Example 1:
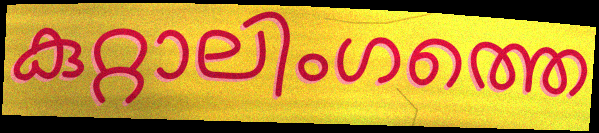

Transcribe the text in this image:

കുറ്റാലിംഗത്തെ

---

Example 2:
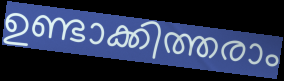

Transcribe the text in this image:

ഉണ്ടാക്കിത്തരാം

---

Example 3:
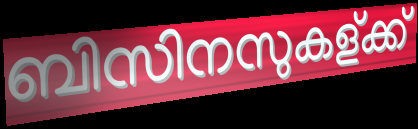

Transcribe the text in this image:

ബിസിനസുകള്ക്ക്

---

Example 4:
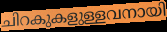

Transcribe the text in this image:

ചിറകുകളുള്ളവനായി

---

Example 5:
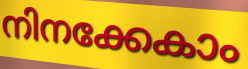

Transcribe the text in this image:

നിനക്കേകാം